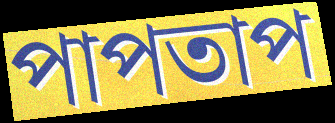
পাপতাপ